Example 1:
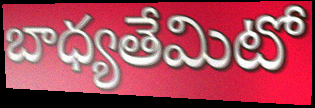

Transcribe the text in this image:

బాధ్యతేమిటో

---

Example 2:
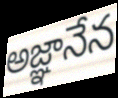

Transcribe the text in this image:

అజ్ఞానేన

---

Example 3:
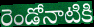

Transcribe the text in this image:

రెండోనాటికి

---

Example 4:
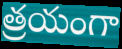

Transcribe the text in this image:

త్రయంగా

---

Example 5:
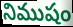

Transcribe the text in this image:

నిముషం